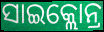
ସାଇକ୍ଲୋନ୍ର